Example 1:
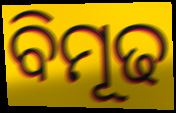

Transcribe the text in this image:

ବିମୂଢ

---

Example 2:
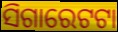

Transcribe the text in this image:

ସିଗାରେଟଟା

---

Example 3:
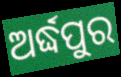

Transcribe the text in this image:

ଅର୍ଦ୍ଧପୁର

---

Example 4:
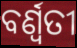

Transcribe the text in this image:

ବର୍ଣ୍ବତୀ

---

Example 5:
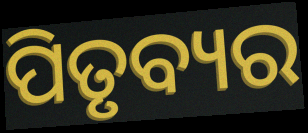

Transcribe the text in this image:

ପିତୃବ୍ୟର